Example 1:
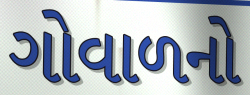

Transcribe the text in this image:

ગોવાળનો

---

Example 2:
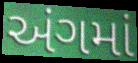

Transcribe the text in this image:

અંગમાં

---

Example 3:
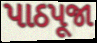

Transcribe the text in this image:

પાઠપૂજા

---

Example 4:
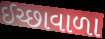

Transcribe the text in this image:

ઈચ્છાવાળા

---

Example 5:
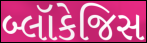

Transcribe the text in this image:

બ્લૉકેજિસ